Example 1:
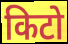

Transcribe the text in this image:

किटो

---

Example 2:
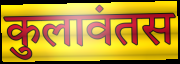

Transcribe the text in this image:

कुलावंतस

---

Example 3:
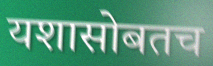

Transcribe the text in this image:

यशासोबतच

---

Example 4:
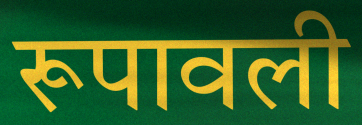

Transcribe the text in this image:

रूपावली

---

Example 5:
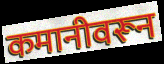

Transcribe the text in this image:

कमानीवरून